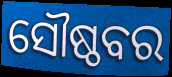
ସୌଷ୍ଠବର